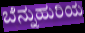
ಬೆನ್ನುಹುರಿಯ